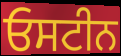
ਓਸਟੀਨ